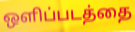
ஒளிப்படத்தை